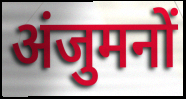
अंजुमनों